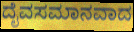
ದೈವಸಮಾನವಾದ